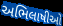
અભિલાષીઓ